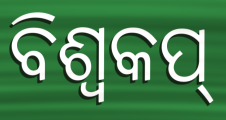
ବିଶ୍ୱକପ୍